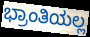
ಭ್ರಾಂತಿಯಲ್ಲ